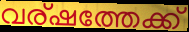
വര്ഷത്തേക്ക്